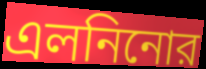
এলনিনোর